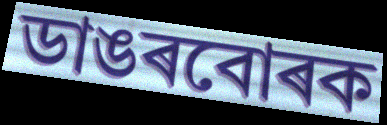
ডাঙৰবোৰক